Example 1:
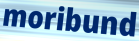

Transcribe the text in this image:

moribund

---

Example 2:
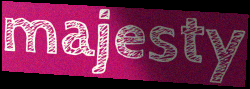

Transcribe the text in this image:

majesty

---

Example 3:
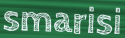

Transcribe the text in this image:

smarisi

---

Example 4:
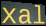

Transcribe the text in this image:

xal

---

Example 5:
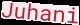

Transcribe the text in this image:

Juhani